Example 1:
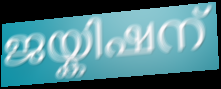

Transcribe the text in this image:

ജയ്കിഷന്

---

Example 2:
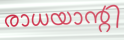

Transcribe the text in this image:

രാധയാന്റി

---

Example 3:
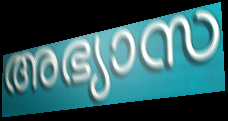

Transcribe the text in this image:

അഭ്യാസ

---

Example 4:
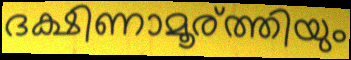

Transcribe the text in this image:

ദക്ഷിണാമൂര്ത്തിയും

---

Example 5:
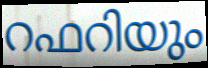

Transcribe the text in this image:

റഫറിയും